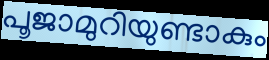
പൂജാമുറിയുണ്ടാകും